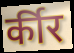
र्कीर